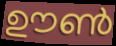
ഊൺ